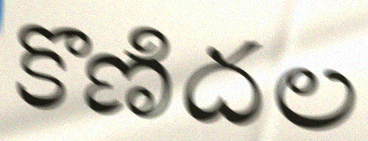
కొణిదల